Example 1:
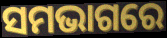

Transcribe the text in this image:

ସମଭାଗରେ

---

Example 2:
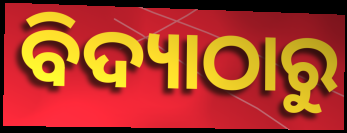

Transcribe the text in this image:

ବିଦ୍ୟାଠାରୁ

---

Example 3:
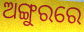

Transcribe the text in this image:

ଅଙ୍ଗୁରରେ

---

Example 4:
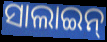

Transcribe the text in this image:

ସାଲାଇନ୍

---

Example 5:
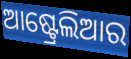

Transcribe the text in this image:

ଆଷ୍ଟ୍ରେଲିଆର